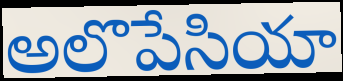
అలొపేసియా